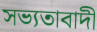
সভ্যতাবাদী